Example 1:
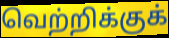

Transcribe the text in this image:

வெற்றிக்குக்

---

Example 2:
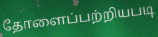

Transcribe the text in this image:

தோளைப்பற்றியபடி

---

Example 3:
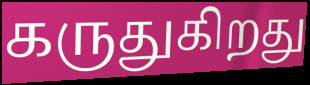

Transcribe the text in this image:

கருதுகிறது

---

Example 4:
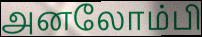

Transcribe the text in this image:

அனலோம்பி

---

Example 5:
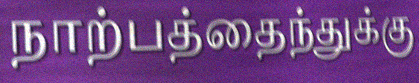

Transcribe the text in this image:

நாற்பத்தைந்துக்கு